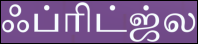
ஃப்ரிட்ஜ்ல